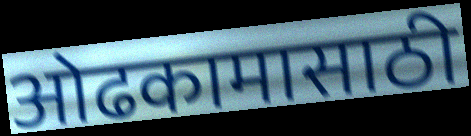
ओढकामासाठी